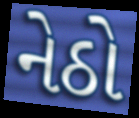
નેઠો